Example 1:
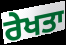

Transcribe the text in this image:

ਰੇਖਤਾ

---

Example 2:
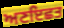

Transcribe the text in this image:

ਅਣਇਛਤ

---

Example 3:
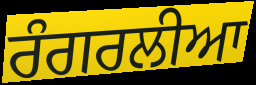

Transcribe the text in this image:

ਰੰਗਰਲੀਆ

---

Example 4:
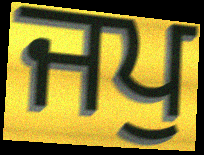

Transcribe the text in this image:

ਜਪੁ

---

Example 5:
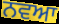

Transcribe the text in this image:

ਨਵਆ